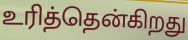
உரித்தென்கிறது